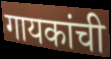
गायकांची